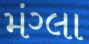
મંગ્લા